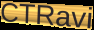
CTRavi